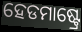
ହେଡମାଷ୍ଟ୍ରେ